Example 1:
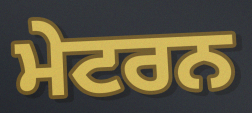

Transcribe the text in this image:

ਮੇਟਰਨ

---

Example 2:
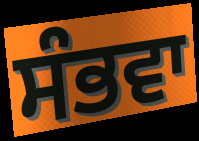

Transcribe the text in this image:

ਸੰਭਵਾ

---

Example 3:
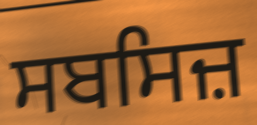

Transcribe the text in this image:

ਸਬਸਿਜ਼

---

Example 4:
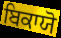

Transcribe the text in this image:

ਬਿਕਾਯੋ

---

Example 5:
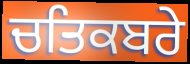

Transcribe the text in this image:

ਚਤਿਕਬਰੇ